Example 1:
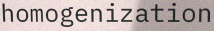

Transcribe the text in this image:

homogenization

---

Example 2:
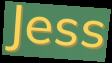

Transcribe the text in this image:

Jess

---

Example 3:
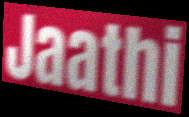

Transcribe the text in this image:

Jaathi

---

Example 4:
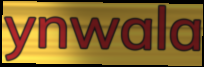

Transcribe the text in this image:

ynwala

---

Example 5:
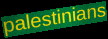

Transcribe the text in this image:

palestinians